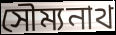
সৌম্যনাথ